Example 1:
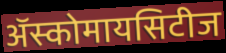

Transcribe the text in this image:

ॲस्कोमायसिटीज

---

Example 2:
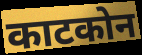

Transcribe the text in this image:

काटकोन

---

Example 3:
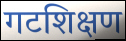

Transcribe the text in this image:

गटशिक्षण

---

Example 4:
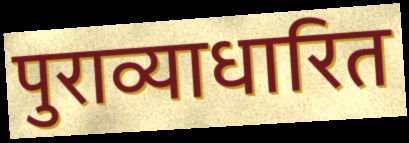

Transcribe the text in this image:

पुराव्याधारित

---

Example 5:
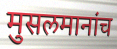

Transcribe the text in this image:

मुसलमानांच